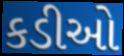
કડીઓ